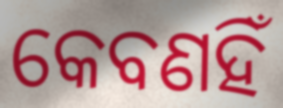
କେବଣହିଁ